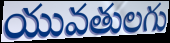
యువతులగు